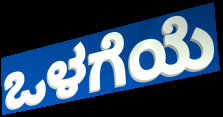
ಒಳಗೆಯೆ